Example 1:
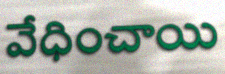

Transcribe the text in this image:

వేధించాయి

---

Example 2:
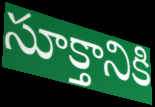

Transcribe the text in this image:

సూక్తానికి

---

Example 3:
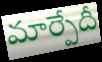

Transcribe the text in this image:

మార్పేదీ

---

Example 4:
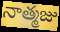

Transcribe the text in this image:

నాత్మజు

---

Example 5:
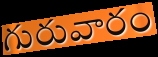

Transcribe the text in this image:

గురువారం